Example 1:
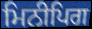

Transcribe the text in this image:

ਮਿਨੀਪਿਗ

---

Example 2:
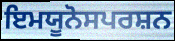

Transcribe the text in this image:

ਇਮਯੂਨੋਸਪਰਸ਼ਨ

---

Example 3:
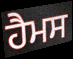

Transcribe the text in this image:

ਹੈਮਸ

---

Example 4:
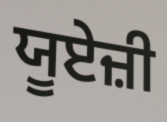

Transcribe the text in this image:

ਯੂਏਜ਼ੀ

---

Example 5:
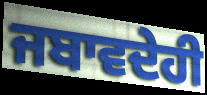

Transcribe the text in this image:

ਜਬਾਵਦੇਹੀ